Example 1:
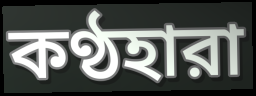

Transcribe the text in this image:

কণ্ঠহারা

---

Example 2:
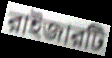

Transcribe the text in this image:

রাইজারটি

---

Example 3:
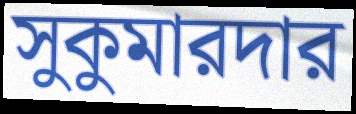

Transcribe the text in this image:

সুকুমারদার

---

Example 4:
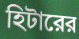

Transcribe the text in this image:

হিটারের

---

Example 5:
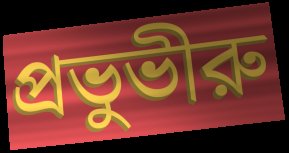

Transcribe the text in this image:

প্রভুভীরু